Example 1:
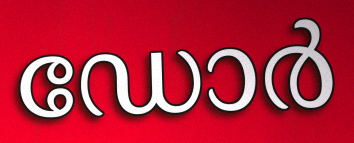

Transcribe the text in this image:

ഡോർ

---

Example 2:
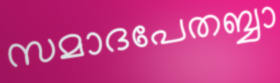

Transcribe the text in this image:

സമാദപേതബ്ബാ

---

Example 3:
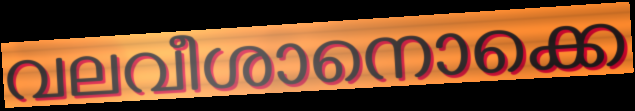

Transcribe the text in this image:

വലവീശാനൊക്കെ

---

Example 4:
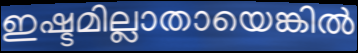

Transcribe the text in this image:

ഇഷ്ടമില്ലാതായെങ്കിൽ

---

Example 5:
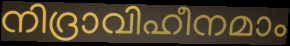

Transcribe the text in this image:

നിദ്രാവിഹീനമാം